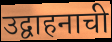
उद्वाहनाची